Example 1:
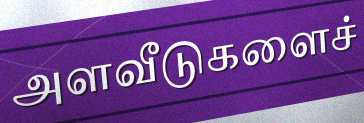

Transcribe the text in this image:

அளவீடுகளைச்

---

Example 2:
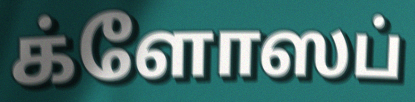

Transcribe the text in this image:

க்ளோஸப்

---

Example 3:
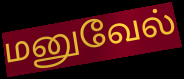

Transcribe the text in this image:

மனுவேல்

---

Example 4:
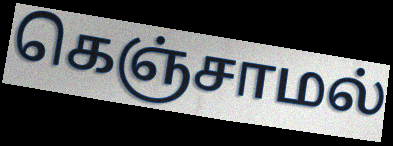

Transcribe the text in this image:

கெஞ்சாமல்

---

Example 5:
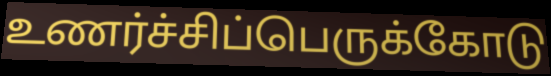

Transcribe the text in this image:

உணர்ச்சிப்பெருக்கோடு